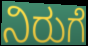
ನಿರುಗೆ